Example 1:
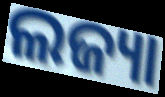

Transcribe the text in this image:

ଲଜ୍ୟା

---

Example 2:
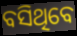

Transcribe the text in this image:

ବସିଥିବେ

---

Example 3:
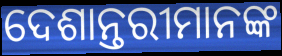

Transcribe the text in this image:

ଦେଶାନ୍ତରୀମାନଙ୍କ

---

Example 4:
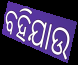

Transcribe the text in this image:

ବହିଯାଉ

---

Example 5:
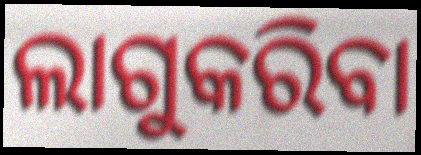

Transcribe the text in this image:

ଲାଗୁକରିବା